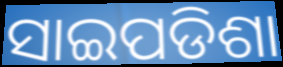
ସାଇପଡିଶା